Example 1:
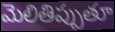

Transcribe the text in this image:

మెలితిప్పుతూ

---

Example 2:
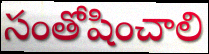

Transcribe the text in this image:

సంతోషించాలి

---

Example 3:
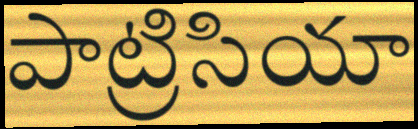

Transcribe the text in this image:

పాట్రిసియా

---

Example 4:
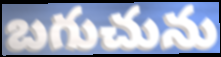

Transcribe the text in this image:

బగుచును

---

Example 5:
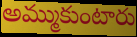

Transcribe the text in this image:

అమ్ముకుంటారు